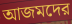
আজমদের